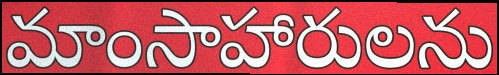
మాంసాహారులను